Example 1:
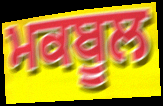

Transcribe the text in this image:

ਮਕਬੂਲ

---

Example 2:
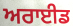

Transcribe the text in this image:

ਅਰਾਈਡ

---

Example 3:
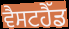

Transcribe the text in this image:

ਵੈਸਟਹੈੱਡ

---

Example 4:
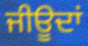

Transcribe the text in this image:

ਜੀਊਦਾਂ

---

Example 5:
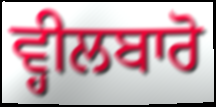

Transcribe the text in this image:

ਵ੍ਹੀਲਬਾਰੋ